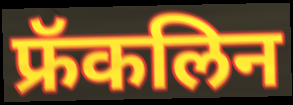
फ्रॅकलिन